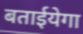
बताईयेगा